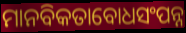
ମାନବିକତାବୋଧସଂପନ୍ନ